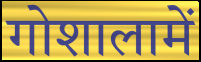
गोशालामें